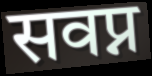
सवप्न